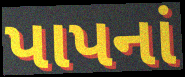
પાપનાં